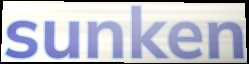
sunken